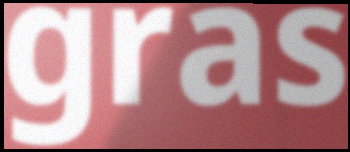
gras